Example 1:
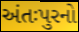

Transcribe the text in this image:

અંતઃપુરનો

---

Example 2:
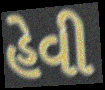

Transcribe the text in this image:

હેવી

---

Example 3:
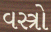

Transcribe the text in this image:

વસ્ત્રો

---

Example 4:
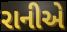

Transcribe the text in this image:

રાનીએ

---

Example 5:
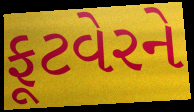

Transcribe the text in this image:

ફૂટવેરને